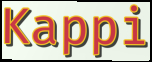
Kappi